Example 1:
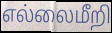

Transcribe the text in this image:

எல்லைமீறி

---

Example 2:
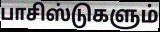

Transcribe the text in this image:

பாசிஸ்டுகளும்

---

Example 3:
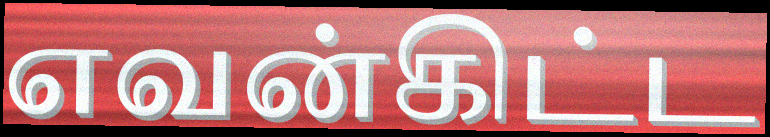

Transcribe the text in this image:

எவன்கிட்ட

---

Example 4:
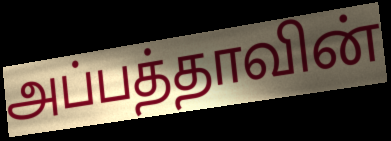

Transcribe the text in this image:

அப்பத்தாவின்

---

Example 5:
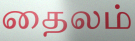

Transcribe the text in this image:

தைலம்